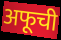
अफूची